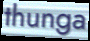
thunga